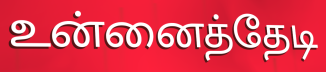
உன்னைத்தேடி